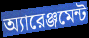
অ্যারেঞ্জমেন্ট